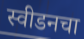
स्वीडनचा